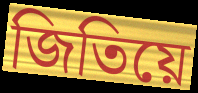
জিতিয়ে